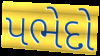
પભેદો